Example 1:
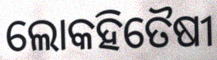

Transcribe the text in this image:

ଲୋକହିତୈଷୀ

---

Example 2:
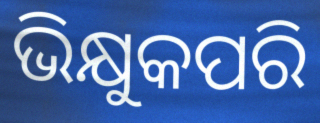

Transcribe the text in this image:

ଭିକ୍ଷୁକପରି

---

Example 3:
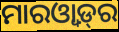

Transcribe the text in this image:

ମାରଓ୍ୱାଡ଼୍‌ର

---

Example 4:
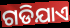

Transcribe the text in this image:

ଗଡିଯାଏ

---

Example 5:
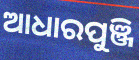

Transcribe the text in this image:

ଆଧାରପୁଞ୍ଜି